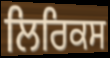
ਲਿਰਿਕਸ